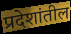
प्रदेशांतील